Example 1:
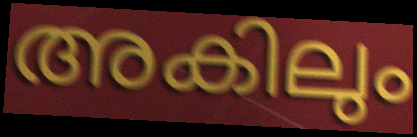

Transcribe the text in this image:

അകിലും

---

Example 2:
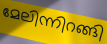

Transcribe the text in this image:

മേലിന്നിറങ്ങി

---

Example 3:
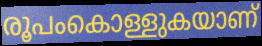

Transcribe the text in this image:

രൂപംകൊള്ളുകയാണ്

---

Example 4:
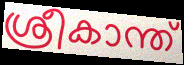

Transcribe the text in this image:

ശ്രീകാന്ത്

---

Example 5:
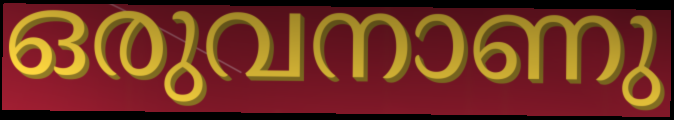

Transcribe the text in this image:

ഒരുവനാണു